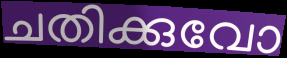
ചതിക്കുവോ